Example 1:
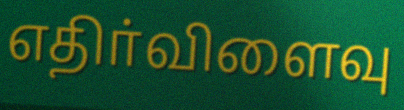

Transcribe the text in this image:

எதிர்விளைவு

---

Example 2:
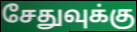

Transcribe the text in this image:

சேதுவுக்கு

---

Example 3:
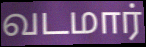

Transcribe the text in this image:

வடமார்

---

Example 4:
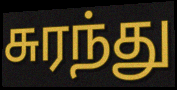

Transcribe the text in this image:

சுரந்து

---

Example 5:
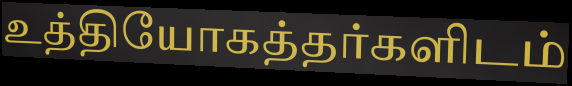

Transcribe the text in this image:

உத்தியோகத்தர்களிடம்